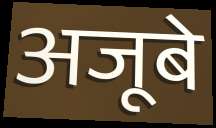
अजूबे